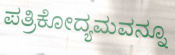
ಪತ್ರಿಕೋದ್ಯಮವನ್ನೂ